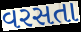
વરસતા